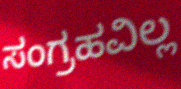
ಸಂಗ್ರಹವಿಲ್ಲ